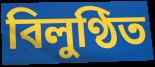
বিলুণ্ঠিত